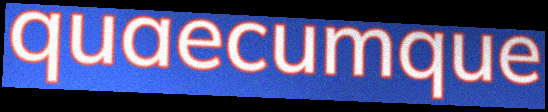
quaecumque